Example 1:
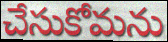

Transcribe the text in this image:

చేసుకోమను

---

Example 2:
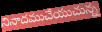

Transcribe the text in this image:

నినాదముచేయుచున్న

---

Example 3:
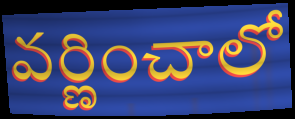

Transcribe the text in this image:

వర్ణించాలో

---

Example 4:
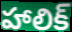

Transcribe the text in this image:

హాలిక్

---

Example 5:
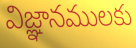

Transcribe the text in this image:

విజ్ఞానములకు